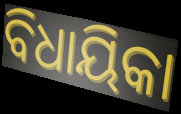
ବିଧାୟିକା